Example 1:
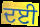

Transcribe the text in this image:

ਦਈ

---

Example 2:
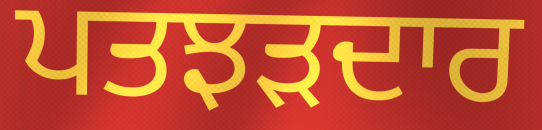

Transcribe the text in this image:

ਪਤਝੜਦਾਰ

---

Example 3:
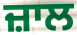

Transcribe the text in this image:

ਜ਼ਾਲ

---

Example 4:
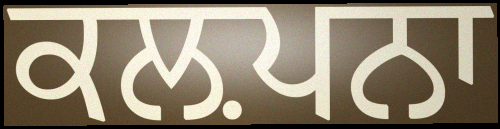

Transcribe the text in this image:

ਕਲ਼ਪਨਾ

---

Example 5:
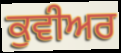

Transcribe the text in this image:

ਕੁਵੀਅਰ